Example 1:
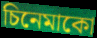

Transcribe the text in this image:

চিনেমাকো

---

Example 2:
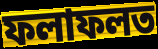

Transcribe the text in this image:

ফলাফলত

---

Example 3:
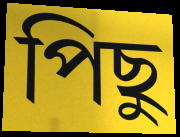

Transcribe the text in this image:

পিছু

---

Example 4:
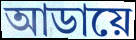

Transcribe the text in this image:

আডায়ে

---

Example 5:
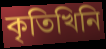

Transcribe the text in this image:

কৃতিখিনি